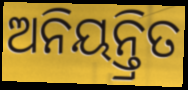
ଅନିୟନ୍ତ୍ରିତ